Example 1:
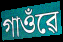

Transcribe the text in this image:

গাওঁৱে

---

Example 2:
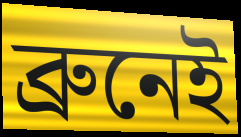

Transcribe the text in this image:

ব্ৰুনেই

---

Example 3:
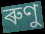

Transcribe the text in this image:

ৰুণু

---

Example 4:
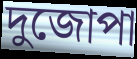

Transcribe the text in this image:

দুজোপা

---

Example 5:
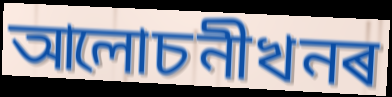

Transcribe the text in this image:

আলোচনীখনৰ